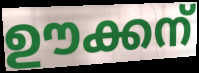
ഊക്കന്